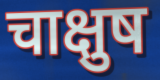
चाक्षुष